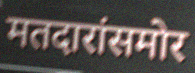
मतदारांसमोर